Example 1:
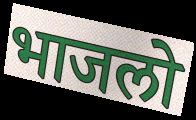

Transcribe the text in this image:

भाजलो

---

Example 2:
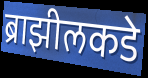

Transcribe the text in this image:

ब्राझीलकडे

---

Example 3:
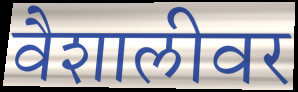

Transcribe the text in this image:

वैशालीवर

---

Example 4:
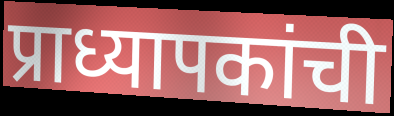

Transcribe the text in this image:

प्राध्यापकांची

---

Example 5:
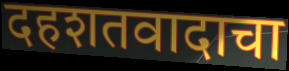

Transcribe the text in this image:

दहशतवादाचा